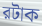
রটাক